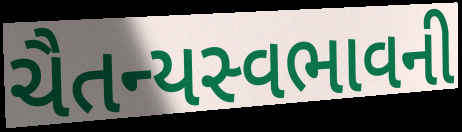
ચૈતન્યસ્વભાવની